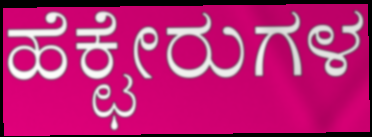
ಹೆಕ್ಟೇರುಗಳ